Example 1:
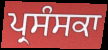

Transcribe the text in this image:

ਪ੍ਰਸੰਸਕਾ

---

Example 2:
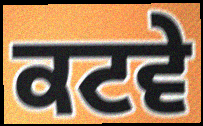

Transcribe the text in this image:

ਕਟਵੇ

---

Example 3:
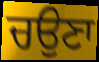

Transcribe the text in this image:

ਚਉਣਾ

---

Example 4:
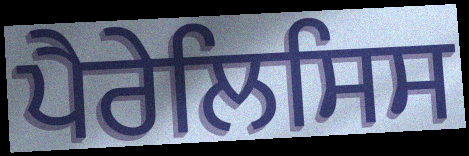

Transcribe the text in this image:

ਪੈਰੇਲਿਸਿਸ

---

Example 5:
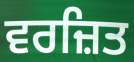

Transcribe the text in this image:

ਵਰਜ਼ਿਤ